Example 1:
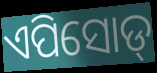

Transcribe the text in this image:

ଏପିସୋଡ୍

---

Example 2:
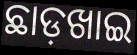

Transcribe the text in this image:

ଛାଡ଼ଖାଇ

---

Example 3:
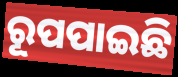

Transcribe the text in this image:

ରୂପପାଇଛି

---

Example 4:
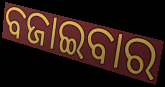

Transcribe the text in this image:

ବଜାଇବାର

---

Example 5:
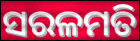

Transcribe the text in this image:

ସରଳମତି